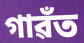
গাৱঁত